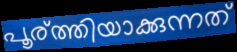
പൂര്ത്തിയാക്കുന്നത്